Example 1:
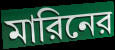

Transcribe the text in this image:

মারিনের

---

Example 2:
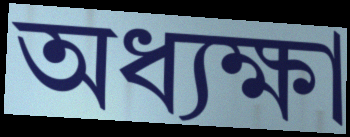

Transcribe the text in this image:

অধ্যক্ষা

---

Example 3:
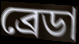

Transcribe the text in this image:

ব্রেডা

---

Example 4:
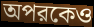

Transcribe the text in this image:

অপরকেও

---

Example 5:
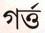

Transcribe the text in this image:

গর্ত্ত